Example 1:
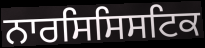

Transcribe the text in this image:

ਨਾਰਸਿਸਿਸਟਿਕ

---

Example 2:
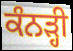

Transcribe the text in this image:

ਕੰਨੜ੍ਹੀ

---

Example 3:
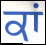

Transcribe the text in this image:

ਕਾਂ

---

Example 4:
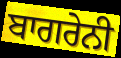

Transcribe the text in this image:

ਬਾਗਰੇਨੀ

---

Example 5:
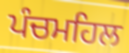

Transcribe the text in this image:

ਪੰਚਮਹਿਲ